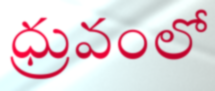
ధ్రువంలో